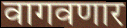
वागवणार